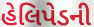
હેલિપેડની